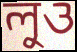
লুও